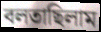
বলতাছিলাম